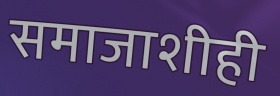
समाजाशीही